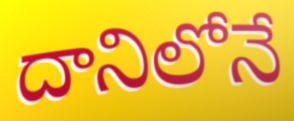
దానిలోనే